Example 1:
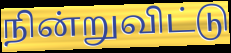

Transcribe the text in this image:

நின்றுவிட்டு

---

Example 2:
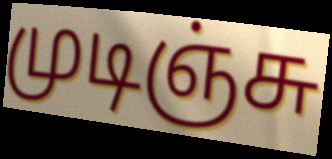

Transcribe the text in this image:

முடிஞ்சு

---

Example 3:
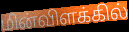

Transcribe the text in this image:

மின்விளக்கில்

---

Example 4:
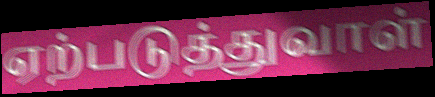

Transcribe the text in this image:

ஏற்படுத்துவாள்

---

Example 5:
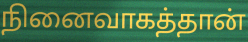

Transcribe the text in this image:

நினைவாகத்தான்